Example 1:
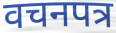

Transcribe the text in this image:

वचनपत्र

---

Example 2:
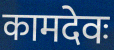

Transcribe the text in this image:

कामदेवः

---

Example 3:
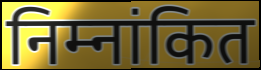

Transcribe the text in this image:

निम्नांकित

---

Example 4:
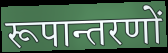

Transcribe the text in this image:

रूपान्तरणों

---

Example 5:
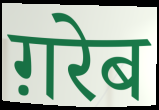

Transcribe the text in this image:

ग़रेब